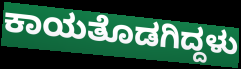
ಕಾಯತೊಡಗಿದ್ದಳು